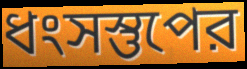
ধংসস্তুপের